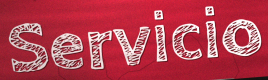
Servicio